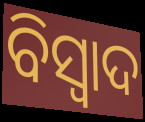
ବିସ୍ଵାଦ